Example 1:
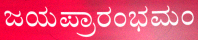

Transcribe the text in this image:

ಜಯಪ್ರಾರಂಭಮಂ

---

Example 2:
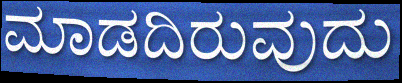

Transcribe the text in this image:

ಮಾಡದಿರುವುದು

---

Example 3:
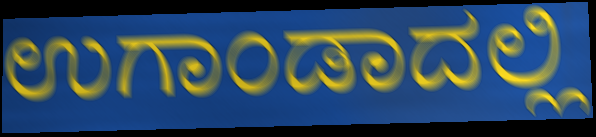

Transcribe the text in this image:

ಉಗಾಂಡಾದಲ್ಲಿ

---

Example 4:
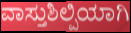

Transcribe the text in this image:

ವಾಸ್ತುಶಿಲ್ಪಿಯಾಗಿ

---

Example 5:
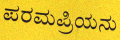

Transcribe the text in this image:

ಪರಮಪ್ರಿಯನು